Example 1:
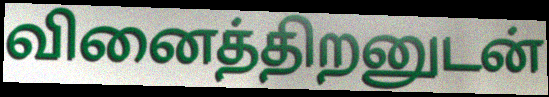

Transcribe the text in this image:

வினைத்திறனுடன்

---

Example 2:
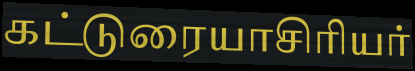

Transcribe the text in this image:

கட்டுரையாசிரியர்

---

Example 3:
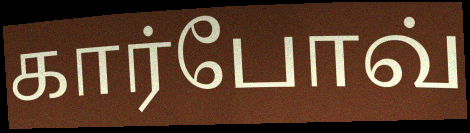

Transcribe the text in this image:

கார்போவ்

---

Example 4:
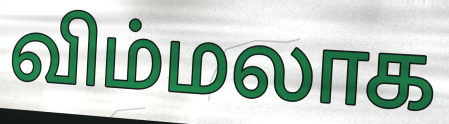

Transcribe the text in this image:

விம்மலாக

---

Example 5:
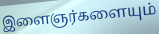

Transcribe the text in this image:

இளைஞர்களையும்